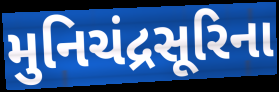
મુનિચંદ્રસૂરિના